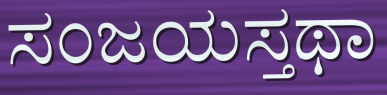
ಸಂಜಯಸ್ತಥಾ